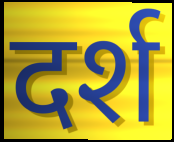
दर्श